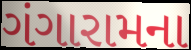
ગંગારામના